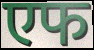
एफ